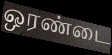
ஒரண்டை